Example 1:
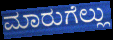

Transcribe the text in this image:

ಮಾರುಗೆಲ್ಲು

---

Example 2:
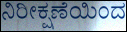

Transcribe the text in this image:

ನಿರೀಕ್ಷಣೆಯಿಂದ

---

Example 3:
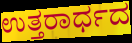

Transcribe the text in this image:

ಉತ್ತರಾರ್ಧದ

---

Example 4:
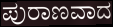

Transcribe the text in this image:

ಪುರಾಣವಾದ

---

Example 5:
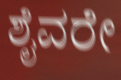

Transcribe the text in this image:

ಶೈವರೇ